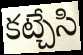
కట్చేసి